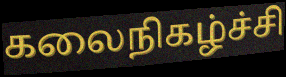
கலைநிகழ்ச்சி